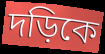
দড়িকে